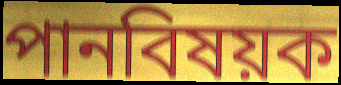
পানবিষয়ক